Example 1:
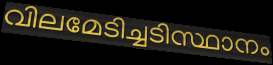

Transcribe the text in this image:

വിലമേടിച്ചടിസ്ഥാനം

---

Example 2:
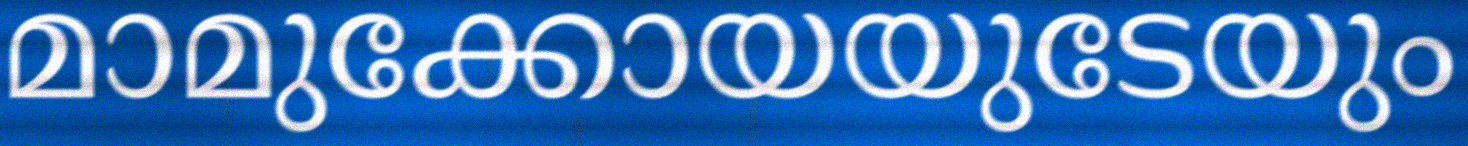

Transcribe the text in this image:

മാമുക്കോയയുടേയും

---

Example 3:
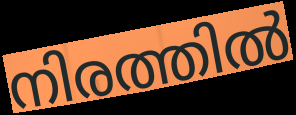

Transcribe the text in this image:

നിരത്തിൽ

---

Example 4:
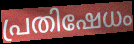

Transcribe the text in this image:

പ്രതിഷേധം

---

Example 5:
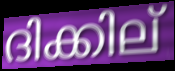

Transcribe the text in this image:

ദിക്കില്